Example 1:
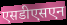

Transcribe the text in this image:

एसडीएसएन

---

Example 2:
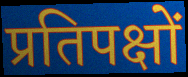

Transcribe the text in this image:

प्रतिपक्षों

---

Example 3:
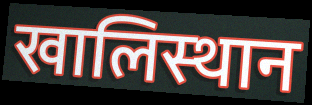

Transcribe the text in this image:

खालिस्थान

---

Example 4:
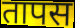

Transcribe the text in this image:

तापस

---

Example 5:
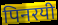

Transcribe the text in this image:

पिनरयी